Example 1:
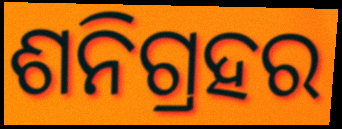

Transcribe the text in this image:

ଶନିଗ୍ରହର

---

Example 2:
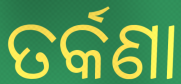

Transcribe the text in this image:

ତର୍କଣା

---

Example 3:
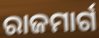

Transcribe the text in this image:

ରାଜମାର୍ଗ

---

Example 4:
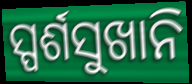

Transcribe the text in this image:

ସ୍ପର୍ଶସୁଖାନି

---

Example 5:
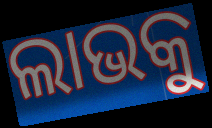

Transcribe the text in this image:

ଲାଭକୁ